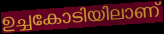
ഉച്ചകോടിയിലാണ്